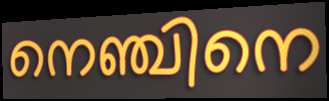
നെഞ്ചിനെ